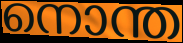
നൊന്ത